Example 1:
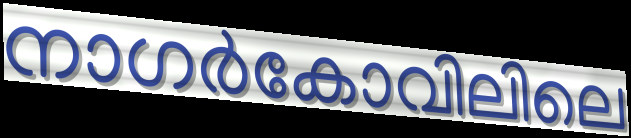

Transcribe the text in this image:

നാഗർകോവിലിലെ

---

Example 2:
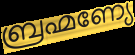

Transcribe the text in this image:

ബ്രഹ്മണ്യേ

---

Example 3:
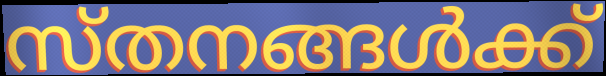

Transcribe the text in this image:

സ്തനങ്ങൾക്ക്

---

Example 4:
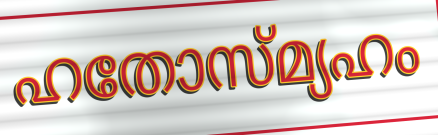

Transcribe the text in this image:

ഹതോസ്മ്യഹം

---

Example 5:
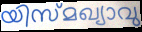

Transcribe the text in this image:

യിസ്മഖ്യാവു